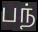
பந்